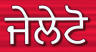
ਜੇਲੇਟੋ